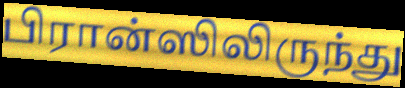
பிரான்ஸிலிருந்து